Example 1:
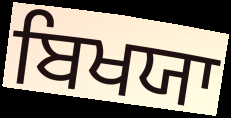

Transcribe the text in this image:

ਬਿਖਯਾ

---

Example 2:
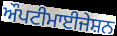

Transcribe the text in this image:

ਔਪਟੀਮਾਈਜੇਸ਼ਨ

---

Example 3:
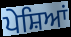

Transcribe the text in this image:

ਪੇਸ਼ਿਆਂ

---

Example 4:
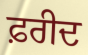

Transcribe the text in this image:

ਫ਼ਰੀਦ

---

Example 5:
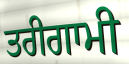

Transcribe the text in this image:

ਤਰੀਗਾਮੀ